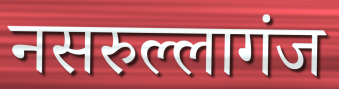
नसरुल्लागंज